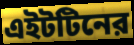
এইটটিনের